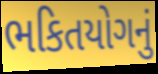
ભકિતયોગનું